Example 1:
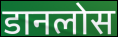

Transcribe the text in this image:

डानलोस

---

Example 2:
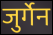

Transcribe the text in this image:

जुर्गेन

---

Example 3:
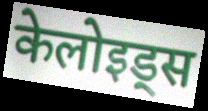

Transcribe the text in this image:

केलोइड्स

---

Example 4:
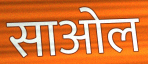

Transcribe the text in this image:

साओल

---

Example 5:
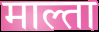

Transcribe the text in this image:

माल्ता